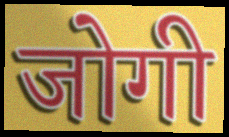
जोगी